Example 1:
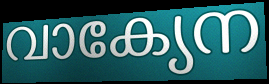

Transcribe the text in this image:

വാക്യേന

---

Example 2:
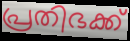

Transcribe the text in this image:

പ്രതിഭക്ക്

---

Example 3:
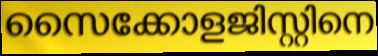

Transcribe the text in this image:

സൈക്കോളജിസ്റ്റിനെ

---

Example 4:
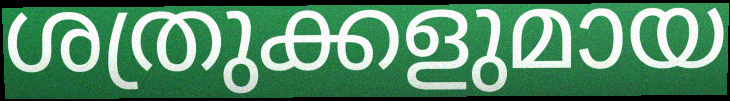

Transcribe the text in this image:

ശത്രുക്കളുമായ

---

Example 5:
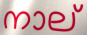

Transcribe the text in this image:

നാല്